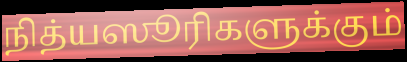
நித்யஸூரிகளுக்கும்